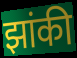
झांकी